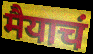
मैयाचं